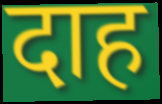
दाह